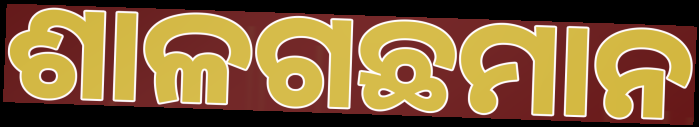
ଶାଳଗଛମାନ